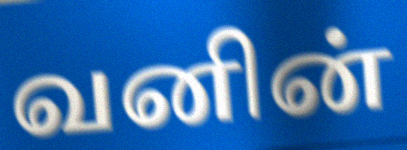
வனின்